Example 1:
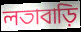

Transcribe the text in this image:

লতাবাড়ি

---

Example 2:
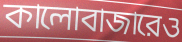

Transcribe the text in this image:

কালোবাজারেও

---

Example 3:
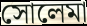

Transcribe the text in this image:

সোলেমা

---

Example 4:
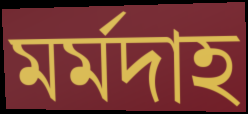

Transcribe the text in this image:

মর্মদাহ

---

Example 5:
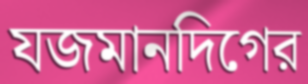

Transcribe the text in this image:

যজমানদিগের